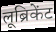
लूब्रिकेंट